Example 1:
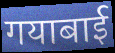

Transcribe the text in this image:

गयाबाई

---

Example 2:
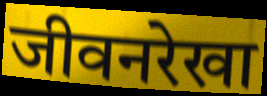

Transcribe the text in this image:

जीवनरेखा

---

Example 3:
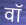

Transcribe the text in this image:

वॉ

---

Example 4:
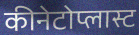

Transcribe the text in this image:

कीनेटोप्लास्ट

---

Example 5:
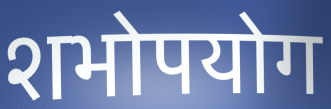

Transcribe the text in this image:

शभोपयोग